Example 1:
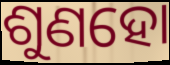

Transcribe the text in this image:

ଶୁଣହୋ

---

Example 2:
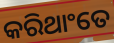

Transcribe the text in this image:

କରିଥାଂତେ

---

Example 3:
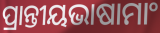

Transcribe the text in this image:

ପ୍ରାନ୍ତୀୟଭାଷାମାଂ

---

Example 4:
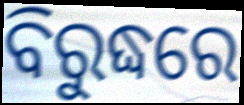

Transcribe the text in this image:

ବିରୁଦ୍ଧରେ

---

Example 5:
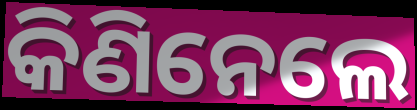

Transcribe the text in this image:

କିଣିନେଲେ